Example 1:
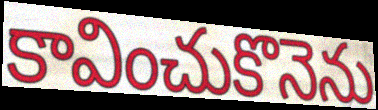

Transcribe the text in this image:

కావించుకొనెను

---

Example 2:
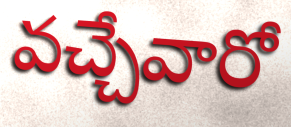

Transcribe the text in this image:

వచ్చేవారో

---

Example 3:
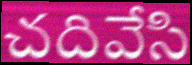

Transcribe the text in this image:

చదివేసి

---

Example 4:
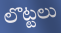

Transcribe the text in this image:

లొట్టలు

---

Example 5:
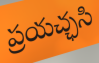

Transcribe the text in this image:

ప్రయచ్ఛసి